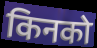
किनको